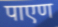
पाएण